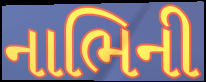
નાભિની